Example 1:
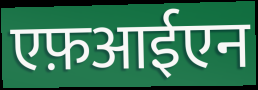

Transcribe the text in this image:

एफ़आईएन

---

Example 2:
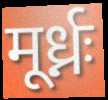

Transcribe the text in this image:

मूर्ध्नः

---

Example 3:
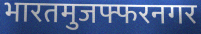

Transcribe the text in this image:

भारतमुजफ्फरनगर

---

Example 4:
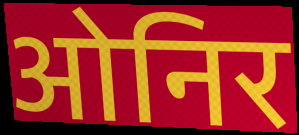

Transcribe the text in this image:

ओनिर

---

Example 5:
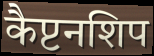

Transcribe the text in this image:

कैप्टनशिप